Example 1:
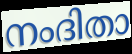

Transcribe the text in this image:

നംദിതാ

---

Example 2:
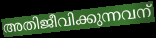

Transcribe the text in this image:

അതിജീവിക്കുന്നവന്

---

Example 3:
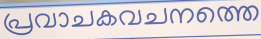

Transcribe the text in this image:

പ്രവാചകവചനത്തെ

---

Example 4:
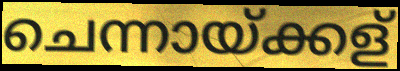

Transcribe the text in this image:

ചെന്നായ്ക്കള്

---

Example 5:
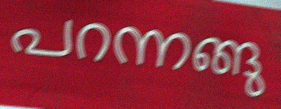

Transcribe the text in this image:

പറന്നങ്ങു